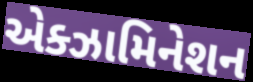
એક્ઝામિનેશન